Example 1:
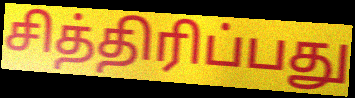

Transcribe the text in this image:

சித்திரிப்பது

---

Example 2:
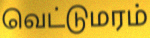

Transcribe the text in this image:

வெட்டுமரம்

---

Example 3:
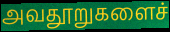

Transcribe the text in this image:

அவதூறுகளைச்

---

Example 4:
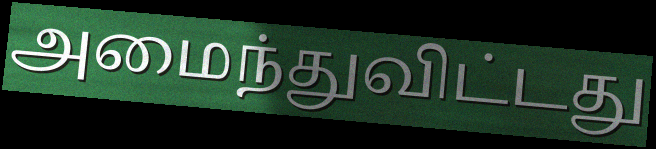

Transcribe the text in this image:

அமைந்துவிட்டது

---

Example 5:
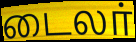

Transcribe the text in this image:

டைலர்